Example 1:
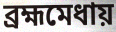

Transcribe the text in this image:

ব্রহ্মমেধায়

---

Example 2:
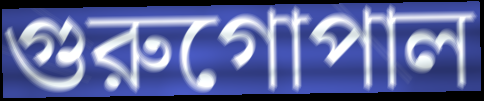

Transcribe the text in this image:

গুরুগোপাল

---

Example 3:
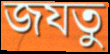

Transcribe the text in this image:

জযতু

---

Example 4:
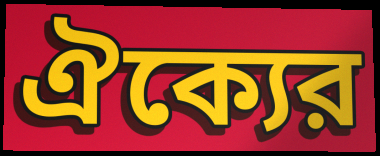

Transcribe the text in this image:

ঐক্যের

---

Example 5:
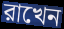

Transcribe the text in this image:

রাখেন